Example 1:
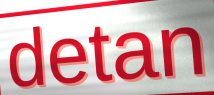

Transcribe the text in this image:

detan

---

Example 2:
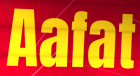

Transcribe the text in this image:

Aafat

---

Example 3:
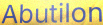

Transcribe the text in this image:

Abutilon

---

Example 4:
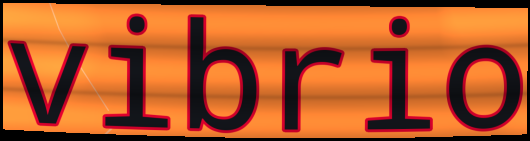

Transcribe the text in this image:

vibrio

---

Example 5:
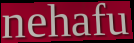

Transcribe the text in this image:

nehafu